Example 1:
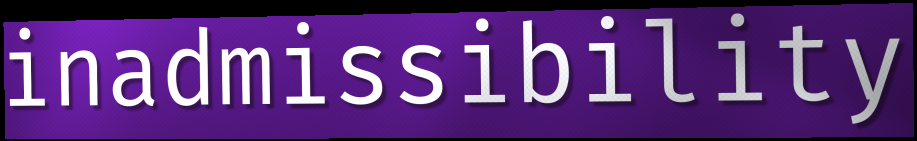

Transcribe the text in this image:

inadmissibility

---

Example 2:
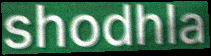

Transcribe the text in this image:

shodhla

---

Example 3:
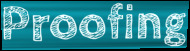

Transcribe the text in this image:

Proofing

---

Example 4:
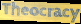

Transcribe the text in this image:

Theocracy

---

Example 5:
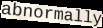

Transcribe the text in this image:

abnormally